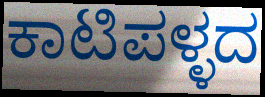
ಕಾಟಿಪಳ್ಳದ